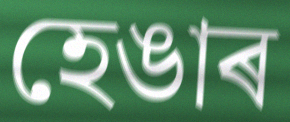
হেঙাৰ